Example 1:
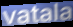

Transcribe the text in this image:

vatala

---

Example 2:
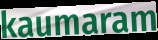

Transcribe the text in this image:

kaumaram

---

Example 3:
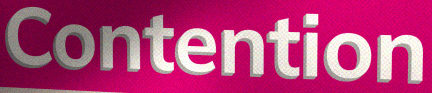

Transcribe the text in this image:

Contention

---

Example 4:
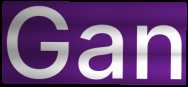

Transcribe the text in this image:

Gan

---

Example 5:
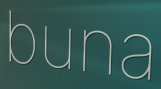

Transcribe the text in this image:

buna